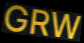
GRW